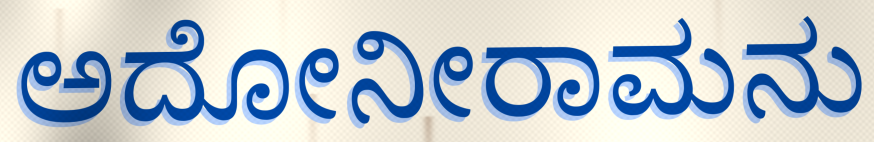
ಅದೋನೀರಾಮನು